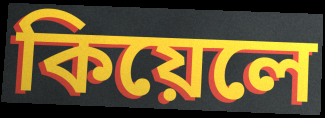
কিয়েলে